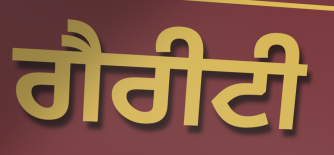
ਗੈਰੀਟੀ